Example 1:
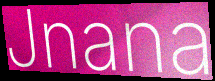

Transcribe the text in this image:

Jnana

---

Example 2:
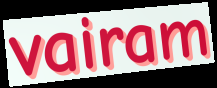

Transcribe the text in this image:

vairam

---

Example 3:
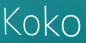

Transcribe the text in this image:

Koko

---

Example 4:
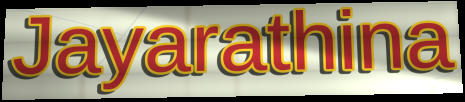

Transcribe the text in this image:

Jayarathina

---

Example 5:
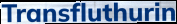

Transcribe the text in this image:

Transfluthurin